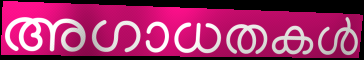
അഗാധതകൾ